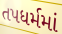
તપધર્મમાં